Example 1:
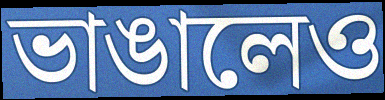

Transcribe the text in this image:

ভাঙালেও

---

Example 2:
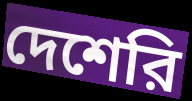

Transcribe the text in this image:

দেশেরি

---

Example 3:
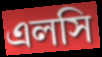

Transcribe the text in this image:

এলসি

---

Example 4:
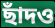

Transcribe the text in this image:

ছাঁদও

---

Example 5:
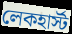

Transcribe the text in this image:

লেকহার্স্ট